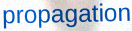
propagation